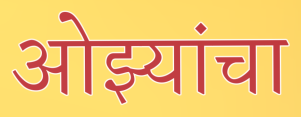
ओझ्यांचा